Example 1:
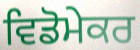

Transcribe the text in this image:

ਵਿਡੋਮੇਕਰ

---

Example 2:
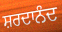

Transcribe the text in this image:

ਸ਼ਰਦਾਨੰਦ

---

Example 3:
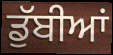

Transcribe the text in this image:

ਡੁੱਬੀਆਂ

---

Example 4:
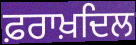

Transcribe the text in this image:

ਫ਼ਰਾਖ਼ਦਿਲ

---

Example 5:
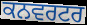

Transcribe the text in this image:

ਕਨਵਰਟਰ